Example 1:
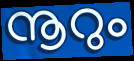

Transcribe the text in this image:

നൂറും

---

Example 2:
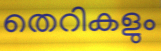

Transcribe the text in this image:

തെറികളും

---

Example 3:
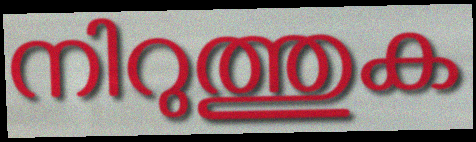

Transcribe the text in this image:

നിറുത്തുക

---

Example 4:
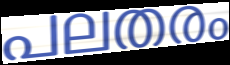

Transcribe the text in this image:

പലതരം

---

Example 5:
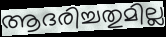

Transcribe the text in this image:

ആദരിച്ചതുമില്ല